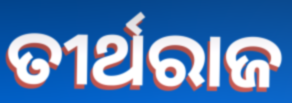
ତୀର୍ଥରାଜ